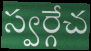
స్వర్గేచ